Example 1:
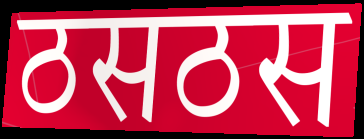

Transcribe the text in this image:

ठसठस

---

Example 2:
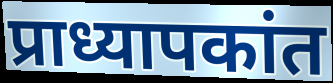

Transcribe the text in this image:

प्राध्यापकांत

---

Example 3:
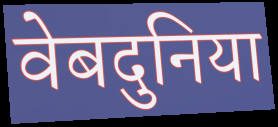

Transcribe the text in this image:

वेबदुनिया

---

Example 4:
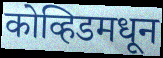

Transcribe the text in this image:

कोव्हिडमधून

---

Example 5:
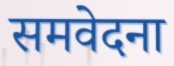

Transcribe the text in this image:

समवेदना